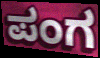
ಪಂಗ